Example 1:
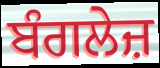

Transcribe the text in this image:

ਬੰਗਲੇਜ਼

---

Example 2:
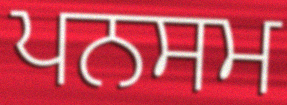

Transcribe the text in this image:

ਪਨਸਮ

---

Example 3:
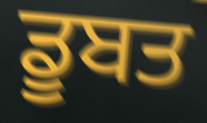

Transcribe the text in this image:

ਡੂਬਤ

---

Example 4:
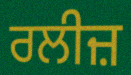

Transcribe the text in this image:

ਰਲੀਜ਼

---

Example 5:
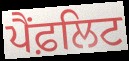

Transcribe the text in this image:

ਪੈਂਫ਼ਲਿਟ